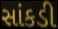
સાંકડી